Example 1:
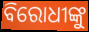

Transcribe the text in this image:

ବିରୋଧୀଙ୍କୁ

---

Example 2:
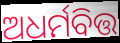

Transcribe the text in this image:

ଅଧର୍ମବିତ୍ତ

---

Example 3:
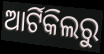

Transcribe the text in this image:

ଆର୍ଟିକିଲରୁ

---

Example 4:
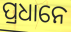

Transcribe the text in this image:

ପ୍ରଧାନେ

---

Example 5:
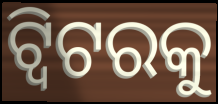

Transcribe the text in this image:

ଟ୍ୱିଟରକୁ